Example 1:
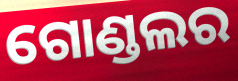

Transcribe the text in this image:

ଗୋଣ୍ଡଲର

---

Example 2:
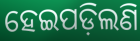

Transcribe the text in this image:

ହେଇପଡ଼ିଲଣି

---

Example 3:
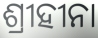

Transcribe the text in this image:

ଶ୍ରୀହୀନା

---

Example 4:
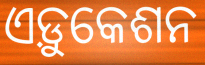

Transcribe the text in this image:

ଏଡ଼ୁକେଶନ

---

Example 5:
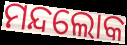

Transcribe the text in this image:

ମନ୍ଦଲୋକ